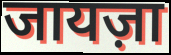
जायज़ा